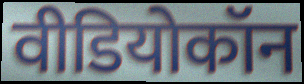
वीडियोकॉन